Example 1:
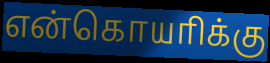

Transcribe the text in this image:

என்கொயரிக்கு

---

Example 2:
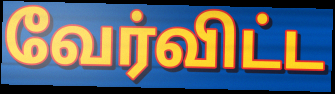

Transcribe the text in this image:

வேர்விட்ட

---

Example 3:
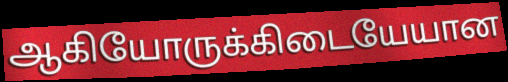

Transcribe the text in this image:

ஆகியோருக்கிடையேயான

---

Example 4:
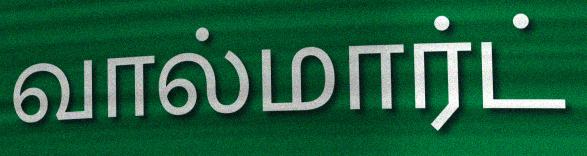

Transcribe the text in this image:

வால்மார்ட்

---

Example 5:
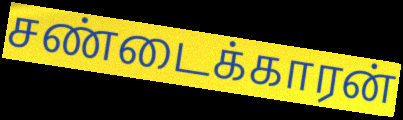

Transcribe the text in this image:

சண்டைக்காரன்